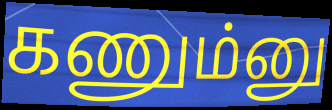
கணும்னு